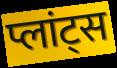
प्लांट्स